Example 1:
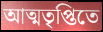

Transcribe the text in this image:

আত্মতৃপ্তিতে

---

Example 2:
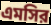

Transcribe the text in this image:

এমসির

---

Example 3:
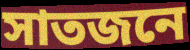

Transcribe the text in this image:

সাতজনে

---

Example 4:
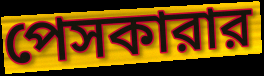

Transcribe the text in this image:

পেসকারার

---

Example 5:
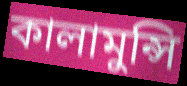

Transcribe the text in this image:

কালামুন্সি